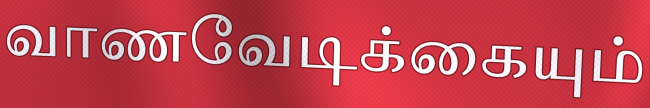
வாணவேடிக்கையும்